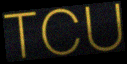
TCU